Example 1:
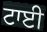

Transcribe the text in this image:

ਟਾਈ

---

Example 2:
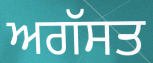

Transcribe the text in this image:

ਅਗੱਸਤ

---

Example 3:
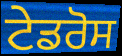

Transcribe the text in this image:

ਟੇਡਰੋਸ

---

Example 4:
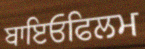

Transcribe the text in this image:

ਬਾਇਓਫਿਲਮ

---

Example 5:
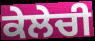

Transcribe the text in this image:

ਕੇਲੇਚੀ